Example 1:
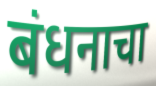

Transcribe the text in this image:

बंधनाचा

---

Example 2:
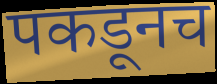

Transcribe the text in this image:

पकडूनच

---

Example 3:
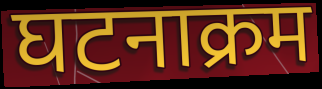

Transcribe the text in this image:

घटनाक्रम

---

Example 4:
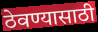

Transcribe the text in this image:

ठेवण्यासाठी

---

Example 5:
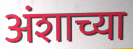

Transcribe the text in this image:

अंशाच्या